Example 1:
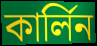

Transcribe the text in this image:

কার্লিন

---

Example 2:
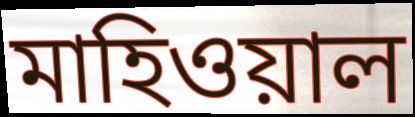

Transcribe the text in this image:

মাহিওয়াল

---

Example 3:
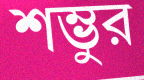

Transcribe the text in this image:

শম্ভুর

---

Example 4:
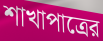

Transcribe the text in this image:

শাখাপাত্রের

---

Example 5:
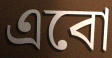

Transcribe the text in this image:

এবো